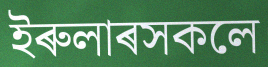
ইৰুলাৰসকলে